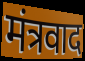
मंत्रवाद